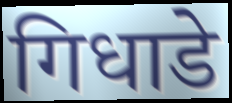
गिधाडे